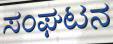
ಸಂಘಟನ